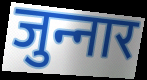
जुन्नार